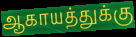
ஆகாயத்துக்கு